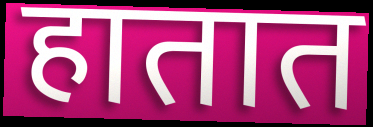
हातात